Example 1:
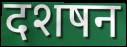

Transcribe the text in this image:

दशषन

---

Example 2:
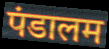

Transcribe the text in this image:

पंडालम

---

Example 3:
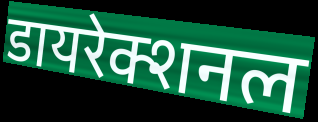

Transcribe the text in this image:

डायरेक्शनल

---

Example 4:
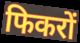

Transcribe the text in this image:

फिकरों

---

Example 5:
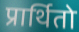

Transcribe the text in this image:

प्रार्थितो